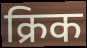
क्रिक